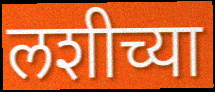
लशीच्या